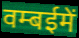
वम्बईमें